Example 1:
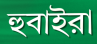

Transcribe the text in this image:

হুবাইরা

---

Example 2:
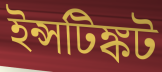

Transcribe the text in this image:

ইন্সটিঙ্কট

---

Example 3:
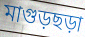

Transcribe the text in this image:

মাগুড়ছড়া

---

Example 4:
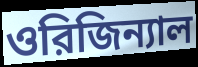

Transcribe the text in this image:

ওরিজিন্যাল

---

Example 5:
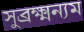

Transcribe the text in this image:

সুব্রক্ষ্মন্যম